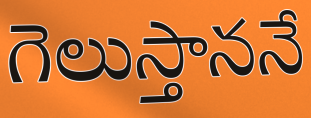
గెలుస్తాననే